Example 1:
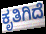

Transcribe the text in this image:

ಕೃತಿಗಿದೆ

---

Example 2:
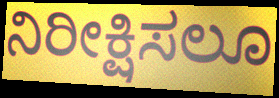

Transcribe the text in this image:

ನಿರೀಕ್ಷಿಸಲೂ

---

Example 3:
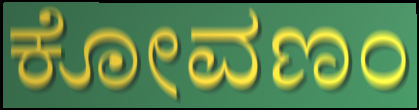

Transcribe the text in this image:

ಕೋವಣಂ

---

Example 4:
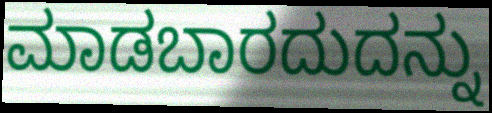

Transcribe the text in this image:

ಮಾಡಬಾರದುದನ್ನು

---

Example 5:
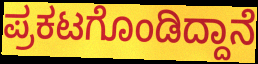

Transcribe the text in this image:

ಪ್ರಕಟಗೊಂಡಿದ್ದಾನೆ